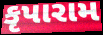
કૃપારામ